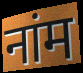
नांम